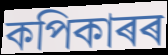
কপিকাৰৰ